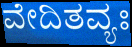
ವೇದಿತವ್ಯಃ